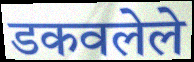
डकवलेले